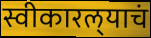
स्वीकारल्याचं